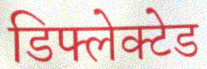
डिफ्लेक्टेड